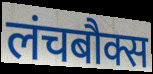
लंचबौक्स